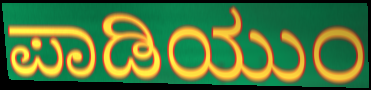
ಪಾಡಿಯುಂ